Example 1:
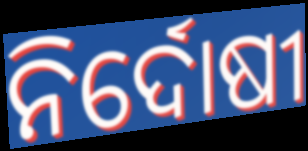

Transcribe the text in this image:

ନିର୍ଦୋଷୀ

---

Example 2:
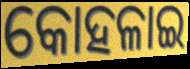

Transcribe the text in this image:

କୋହଳାଇ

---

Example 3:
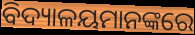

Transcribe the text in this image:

ବିଦ୍ୟାଳୟମାନଙ୍କରେ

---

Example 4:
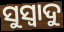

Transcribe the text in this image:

ସୁସ୍ୱାଦୁ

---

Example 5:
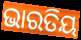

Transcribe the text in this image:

ଭାରତିୟ